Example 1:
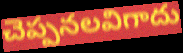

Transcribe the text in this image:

చెప్పనలవిగాదు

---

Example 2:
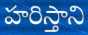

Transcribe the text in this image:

హరిస్తాని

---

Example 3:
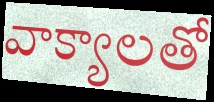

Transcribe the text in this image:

వాక్యాలతో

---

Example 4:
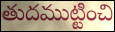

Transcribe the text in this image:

తుదముట్టించి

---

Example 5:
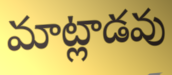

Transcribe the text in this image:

మాట్లాడవు